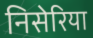
निसेरिया